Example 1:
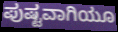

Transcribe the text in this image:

ಪುಷ್ಟವಾಗಿಯೂ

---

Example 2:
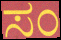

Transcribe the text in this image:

ಸಂ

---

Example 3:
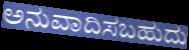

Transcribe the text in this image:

ಅನುವಾದಿಸಬಹುದು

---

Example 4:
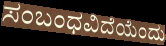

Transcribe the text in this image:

ಸಂಬಂಧವಿದೆಯೆಂದು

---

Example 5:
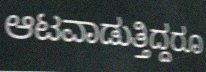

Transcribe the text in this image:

ಆಟವಾಡುತ್ತಿದ್ದರೂ